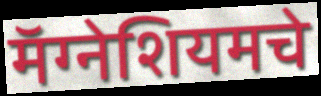
मॅग्नेशियमचे